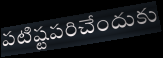
పటిష్టపరిచేందుకు